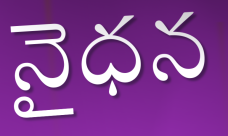
నైధన